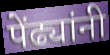
पेंढ्यांनी